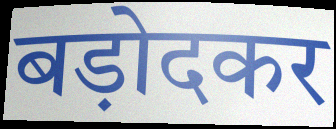
बड़ोदकर